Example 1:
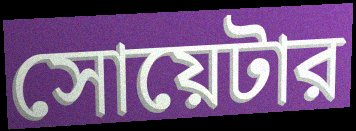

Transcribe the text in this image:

সোয়েটার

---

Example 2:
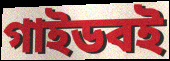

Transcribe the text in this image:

গাইডবই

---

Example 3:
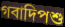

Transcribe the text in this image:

গবাদিপশু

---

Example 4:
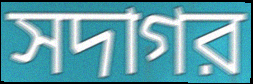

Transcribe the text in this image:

সদাগর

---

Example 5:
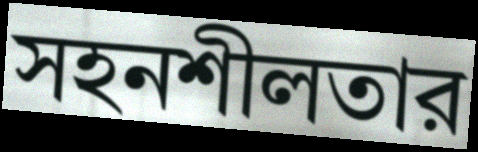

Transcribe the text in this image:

সহনশীলতার